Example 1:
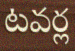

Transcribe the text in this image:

టవర్ల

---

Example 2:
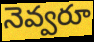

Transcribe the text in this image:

నెవ్వరూ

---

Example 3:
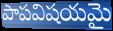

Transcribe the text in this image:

పాపవిషయమై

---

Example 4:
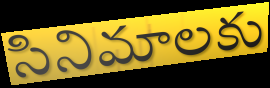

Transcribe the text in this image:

సినిమాలకు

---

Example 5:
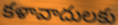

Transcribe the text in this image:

కళావాదులకు